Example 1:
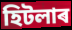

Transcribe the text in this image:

হিটলাৰ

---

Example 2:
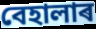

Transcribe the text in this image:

বেহালাৰ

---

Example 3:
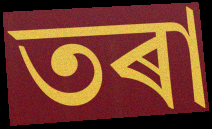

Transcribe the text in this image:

তৰা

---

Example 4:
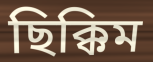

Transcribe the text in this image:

ছিক্কিম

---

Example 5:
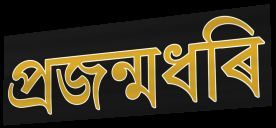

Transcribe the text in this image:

প্ৰজন্মধৰি